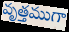
వృత్తముగా